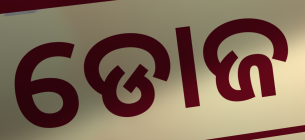
ଡୋଜ